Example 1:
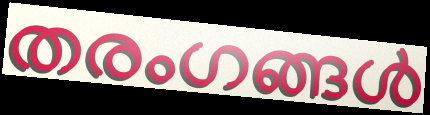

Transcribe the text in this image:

തരംഗങ്ങൾ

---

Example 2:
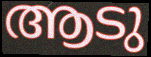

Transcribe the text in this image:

ആടു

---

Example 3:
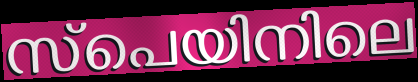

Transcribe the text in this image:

സ്‌പെയിനിലെ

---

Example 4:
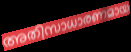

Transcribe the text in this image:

അതിസാധാരണമായ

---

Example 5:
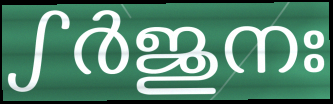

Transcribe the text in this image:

ഽർജുനഃ